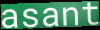
asant